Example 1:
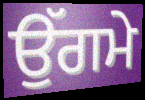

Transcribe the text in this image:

ਉੱਗਮੇ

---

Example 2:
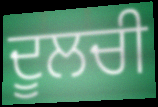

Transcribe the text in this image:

ਦੂਲਚੀ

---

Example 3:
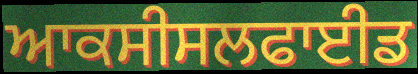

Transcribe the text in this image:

ਆਕਸੀਸਲਫਾਈਡ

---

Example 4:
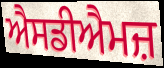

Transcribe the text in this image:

ਐਸਡੀਐਮਜ਼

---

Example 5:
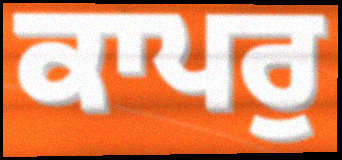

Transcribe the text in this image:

ਕਾਪਰੁ